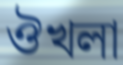
ঔখলা